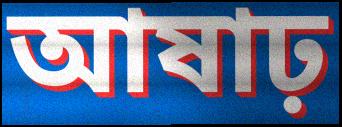
আষাঢ়